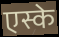
एस्के